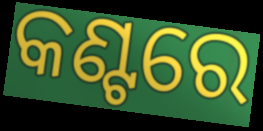
କଣ୍ଟରେ